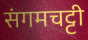
संगमचट्टी